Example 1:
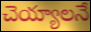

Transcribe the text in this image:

చెయ్యాలనే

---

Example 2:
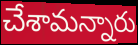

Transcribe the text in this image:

చేశామన్నారు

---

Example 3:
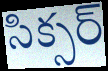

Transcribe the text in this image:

సిక్సర్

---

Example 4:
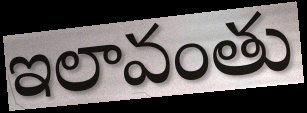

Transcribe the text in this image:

ఇలావంతు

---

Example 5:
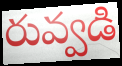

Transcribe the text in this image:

రువ్వడి